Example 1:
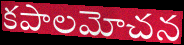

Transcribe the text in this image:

కపాలమోచన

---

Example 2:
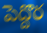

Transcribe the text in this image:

పెద్దొర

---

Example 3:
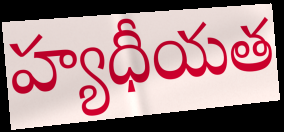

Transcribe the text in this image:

హ్యధీయత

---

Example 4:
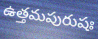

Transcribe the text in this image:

ఉత్తమపురుషః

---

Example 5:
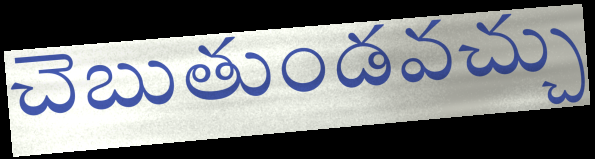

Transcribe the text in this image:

చెబుతుండవచ్చు